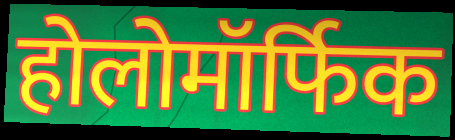
होलोमॉर्फिक